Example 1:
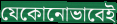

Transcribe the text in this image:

যেকোনোভাবেই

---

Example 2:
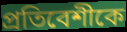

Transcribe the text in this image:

প্রতিবেশীকে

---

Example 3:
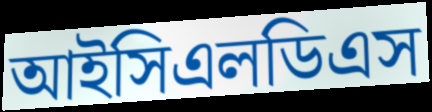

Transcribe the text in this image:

আইসিএলডিএস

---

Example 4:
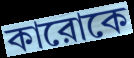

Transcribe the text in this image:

কারোকে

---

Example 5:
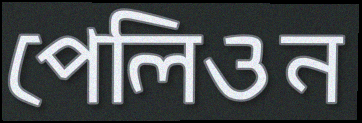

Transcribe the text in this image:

পেলিওন